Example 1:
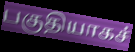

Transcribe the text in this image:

பகுதியாகச்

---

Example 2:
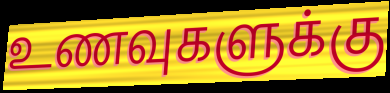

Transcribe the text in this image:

உணவுகளுக்கு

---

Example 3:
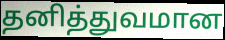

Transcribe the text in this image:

தனித்துவமான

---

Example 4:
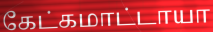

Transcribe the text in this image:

கேட்கமாட்டாயா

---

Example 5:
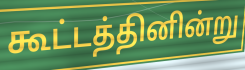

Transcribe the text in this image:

கூட்டத்தினின்று